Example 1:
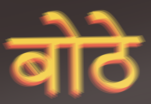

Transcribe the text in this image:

बोठे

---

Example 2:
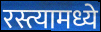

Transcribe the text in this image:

रस्त्यामध्ये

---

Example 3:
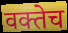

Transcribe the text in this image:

वक्तेच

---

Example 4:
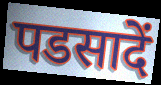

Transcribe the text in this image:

पडसादें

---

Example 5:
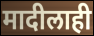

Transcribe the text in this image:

मादीलाही